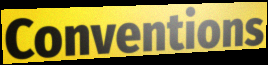
Conventions